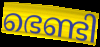
ഭെണ്ടി